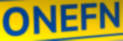
ONEFN